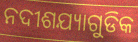
ନଦୀଶଯ୍ୟାଗୁଡିକ